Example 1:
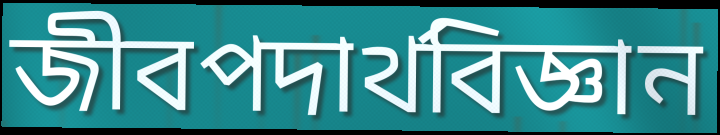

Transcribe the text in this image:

জীবপদার্থবিজ্ঞান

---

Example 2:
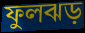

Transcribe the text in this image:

ফুলঝড়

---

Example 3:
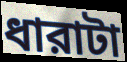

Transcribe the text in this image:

ধারাটা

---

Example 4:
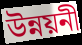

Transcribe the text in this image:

উন্নয়নী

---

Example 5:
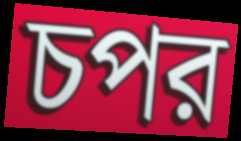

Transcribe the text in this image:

চপর